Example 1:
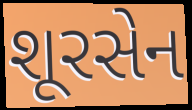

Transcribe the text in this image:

શૂરસેન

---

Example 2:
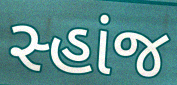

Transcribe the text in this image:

સ્હાંજ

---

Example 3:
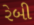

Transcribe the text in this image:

રેબી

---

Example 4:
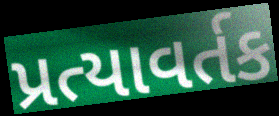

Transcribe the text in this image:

પ્રત્યાવર્તક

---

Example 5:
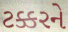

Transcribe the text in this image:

ટક્કરને